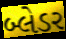
બ્લેડર